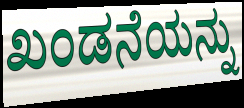
ಖಂಡನೆಯನ್ನು